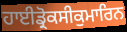
ਹਾਈਡ੍ਰੋਕਸੀਕੁਮਾਰਿਨ